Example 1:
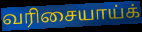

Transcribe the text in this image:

வரிசையாய்க்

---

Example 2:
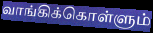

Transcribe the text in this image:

வாங்கிக்கொள்ளும்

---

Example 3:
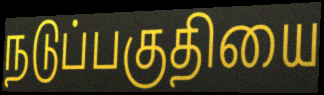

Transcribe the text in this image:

நடுப்பகுதியை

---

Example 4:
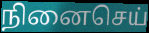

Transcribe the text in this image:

நினைசெய்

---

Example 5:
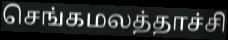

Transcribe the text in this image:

செங்கமலத்தாச்சி